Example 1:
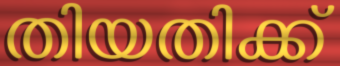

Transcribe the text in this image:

തിയതിക്ക്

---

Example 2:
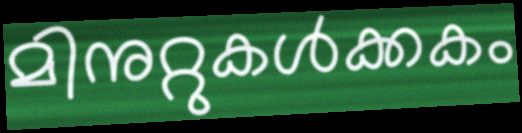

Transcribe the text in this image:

മിനുറ്റുകൾക്കകം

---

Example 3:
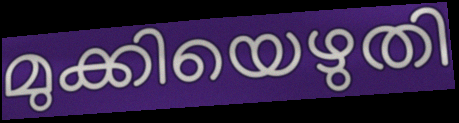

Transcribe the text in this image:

മുക്കിയെഴുതി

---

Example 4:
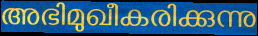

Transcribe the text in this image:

അഭിമുഖീകരിക്കുന്നു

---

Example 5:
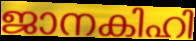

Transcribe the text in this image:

ജാനകിഹി